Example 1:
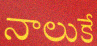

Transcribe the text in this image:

నాలుకే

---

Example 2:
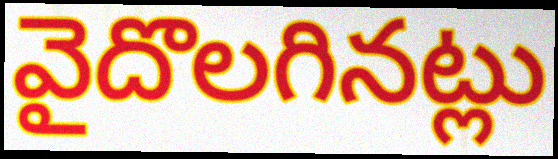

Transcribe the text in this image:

వైదొలగినట్లు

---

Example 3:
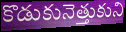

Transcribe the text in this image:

కొడుకునెత్తుకుని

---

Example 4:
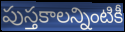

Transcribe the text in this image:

పుస్తకాలన్నింటికీ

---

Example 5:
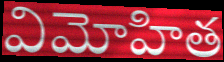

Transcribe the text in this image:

విమోహిత